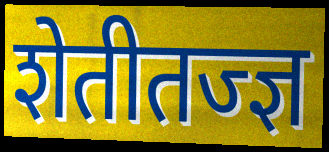
शेतीतज्ज्ञ